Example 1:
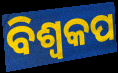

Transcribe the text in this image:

ବିଶ୍ୱକପ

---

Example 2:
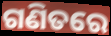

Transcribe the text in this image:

ଗଣିତରେ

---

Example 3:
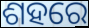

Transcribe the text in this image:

ଶହରେ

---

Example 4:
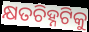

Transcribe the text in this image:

କ୍ଷତଚିହ୍ନଟିକୁ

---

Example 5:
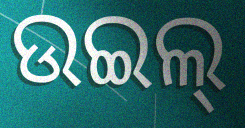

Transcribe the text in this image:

ଉଇଲ୍